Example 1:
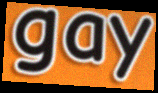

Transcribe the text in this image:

gay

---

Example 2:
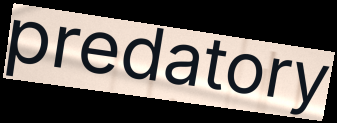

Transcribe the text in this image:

predatory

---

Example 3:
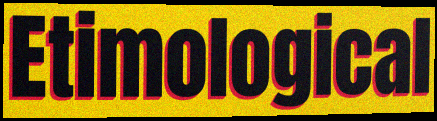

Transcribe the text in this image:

Etimological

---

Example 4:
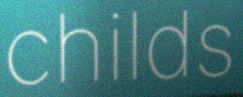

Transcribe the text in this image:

childs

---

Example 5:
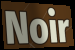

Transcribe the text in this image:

Noir